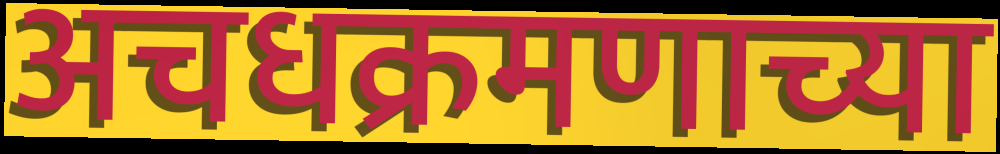
अचधक्रमणाच्या